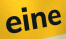
eine